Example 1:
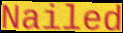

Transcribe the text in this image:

Nailed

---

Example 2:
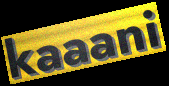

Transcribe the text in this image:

kaaani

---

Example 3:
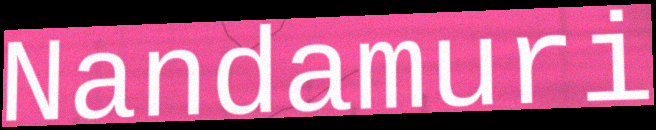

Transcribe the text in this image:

Nandamuri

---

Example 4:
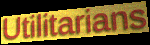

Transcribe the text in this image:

Utilitarians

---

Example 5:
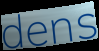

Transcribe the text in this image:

dens